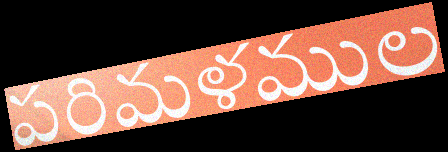
పరిమళముల